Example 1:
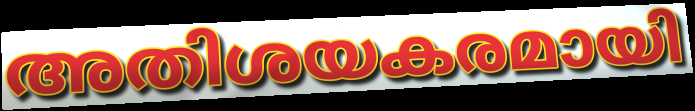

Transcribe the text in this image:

അതിശയകരമായി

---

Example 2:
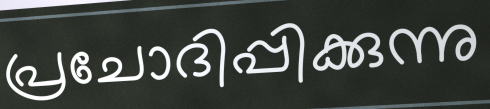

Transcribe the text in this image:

പ്രചോദിപ്പിക്കുന്നു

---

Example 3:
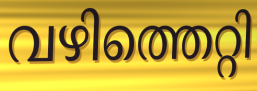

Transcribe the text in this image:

വഴിത്തെറ്റി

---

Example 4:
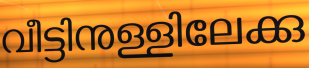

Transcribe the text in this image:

വീട്ടിനുള്ളിലേക്കു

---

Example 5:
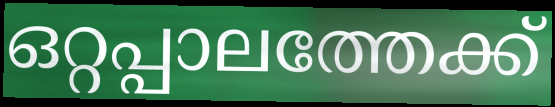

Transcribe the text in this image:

ഒറ്റപ്പാലത്തേക്ക്